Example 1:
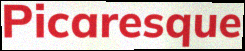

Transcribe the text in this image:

Picaresque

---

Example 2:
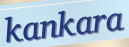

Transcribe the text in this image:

kankara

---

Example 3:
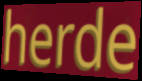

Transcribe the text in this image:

herde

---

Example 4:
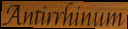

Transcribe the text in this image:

Antirrhinum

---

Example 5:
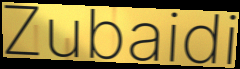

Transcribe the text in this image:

Zubaidi